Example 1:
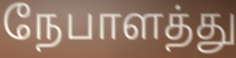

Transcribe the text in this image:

நேபாளத்து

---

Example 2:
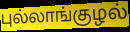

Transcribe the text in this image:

புல்லாங்குழல்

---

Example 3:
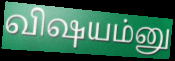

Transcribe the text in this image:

விஷயம்னு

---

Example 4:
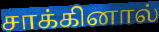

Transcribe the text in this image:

சாக்கினால்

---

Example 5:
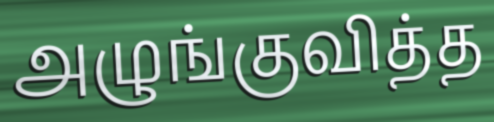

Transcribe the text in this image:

அழுங்குவித்த